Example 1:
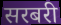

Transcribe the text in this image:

सरबरी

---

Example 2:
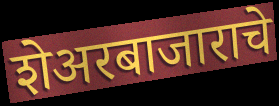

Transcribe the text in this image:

शेअरबाजाराचे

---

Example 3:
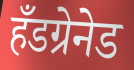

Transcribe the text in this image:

हँडग्रेनेड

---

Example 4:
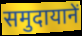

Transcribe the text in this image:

समुदायानें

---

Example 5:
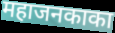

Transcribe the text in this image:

महाजनकाका